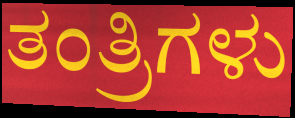
ತಂತ್ರಿಗಳು